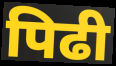
पिढी